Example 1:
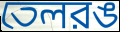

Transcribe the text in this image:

তেলরঙ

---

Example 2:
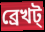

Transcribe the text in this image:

ব্রেখট্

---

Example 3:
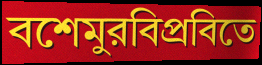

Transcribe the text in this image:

বশেমুরবিপ্রবিতে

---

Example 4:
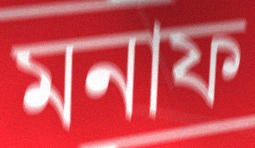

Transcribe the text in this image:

মনাফ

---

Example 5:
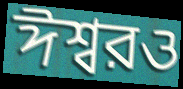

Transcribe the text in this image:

ঈশ্বরও